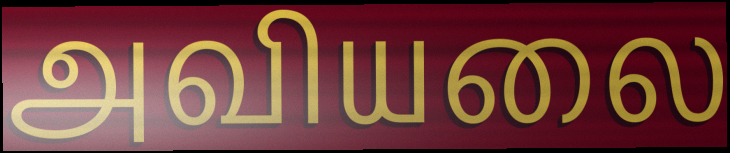
அவியலை